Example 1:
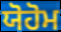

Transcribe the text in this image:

ਯੋਹੋਮ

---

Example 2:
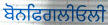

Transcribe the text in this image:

ਬੋਨਫਿਗਲੀਓਲੀ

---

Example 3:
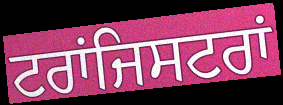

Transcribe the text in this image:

ਟਰਾਂਜਿਸਟਰਾਂ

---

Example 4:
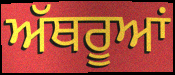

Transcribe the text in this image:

ਅੱਥਰੂਆਂ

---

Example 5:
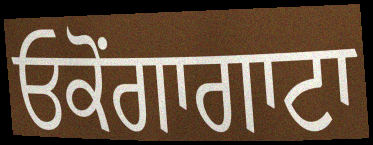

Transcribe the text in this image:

ਓਕੋਂਗਾਗਾਟਾ